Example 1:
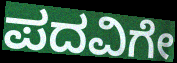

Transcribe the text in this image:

ಪದವಿಗೇ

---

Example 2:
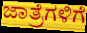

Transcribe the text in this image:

ಜಾತ್ರೆಗಳಿಗೆ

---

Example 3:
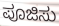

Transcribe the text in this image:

ಪೂಜಿಸು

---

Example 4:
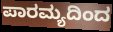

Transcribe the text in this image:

ಪಾರಮ್ಯದಿಂದ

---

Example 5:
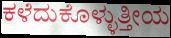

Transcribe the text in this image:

ಕಳೆದುಕೊಳ್ಳುತ್ತೀಯ